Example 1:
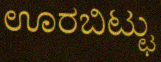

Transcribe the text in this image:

ಊರಬಿಟ್ಟು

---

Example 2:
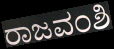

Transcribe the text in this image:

ರಾಜವಂಶಿ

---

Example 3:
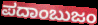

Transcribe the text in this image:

ಪದಾಂಬುಜಂ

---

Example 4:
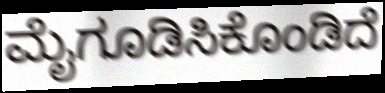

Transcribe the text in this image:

ಮೈಗೂಡಿಸಿಕೊಂಡಿದೆ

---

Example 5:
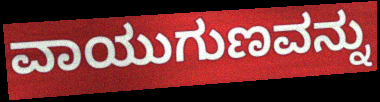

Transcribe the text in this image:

ವಾಯುಗುಣವನ್ನು